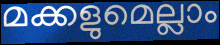
മക്കളുമെല്ലാം